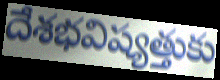
దేశభవిష్యత్తుకు